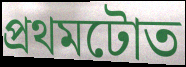
প্ৰথমটোত